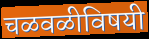
चळवळीविषयी